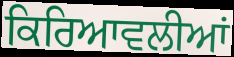
ਕਿਰਿਆਵਲੀਆਂ